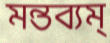
মন্তব্যম্